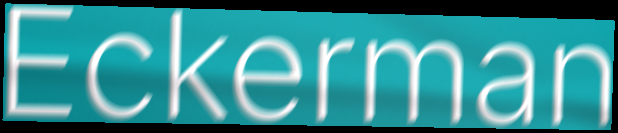
Eckerman